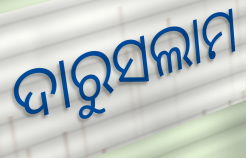
ଦାରୁସଲାମ